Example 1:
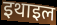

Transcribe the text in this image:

इथाइल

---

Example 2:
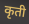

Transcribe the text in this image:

कृती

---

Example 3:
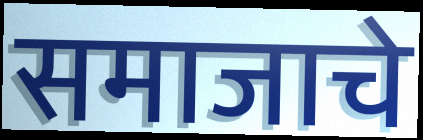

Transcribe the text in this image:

समाजाचे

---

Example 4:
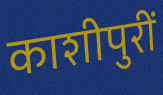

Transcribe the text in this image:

काशीपुरीं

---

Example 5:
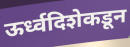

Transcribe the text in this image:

ऊर्ध्वदिशेकडून